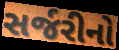
સર્જરીનો